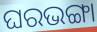
ଘରଭଙ୍ଗା